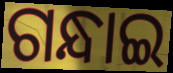
ଗନ୍ଧାଇ